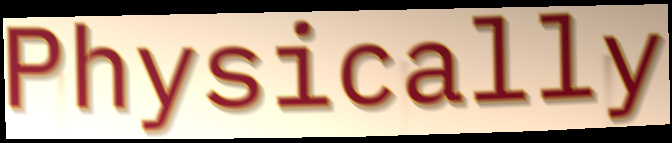
Physically